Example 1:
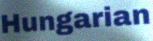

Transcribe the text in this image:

Hungarian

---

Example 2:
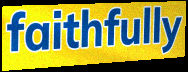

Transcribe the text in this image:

faithfully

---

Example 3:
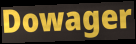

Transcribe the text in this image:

Dowager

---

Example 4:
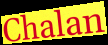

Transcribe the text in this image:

Chalan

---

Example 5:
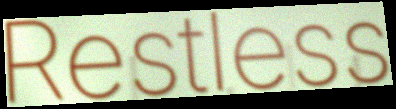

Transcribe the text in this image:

Restless